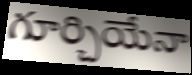
గూర్చియేనా